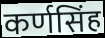
कर्णसिंह